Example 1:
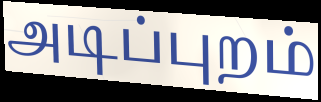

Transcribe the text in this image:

அடிப்புறம்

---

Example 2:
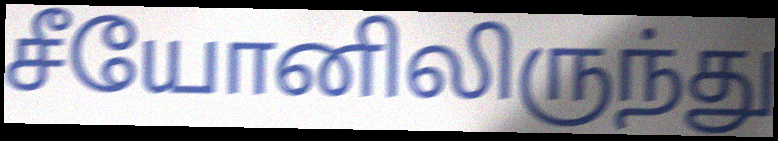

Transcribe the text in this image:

சீயோனிலிருந்து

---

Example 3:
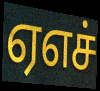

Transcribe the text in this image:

ஏஎச்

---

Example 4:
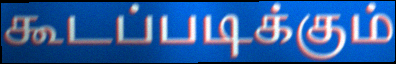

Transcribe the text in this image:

கூடப்படிக்கும்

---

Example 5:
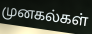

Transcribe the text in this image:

முனகல்கள்